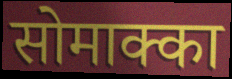
सोमाक्का